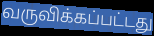
வருவிக்கப்பட்டது